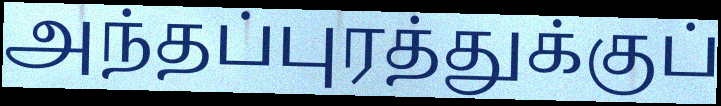
அந்தப்புரத்துக்குப்